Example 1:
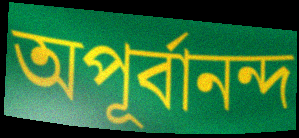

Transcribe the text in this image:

অপূর্বানন্দ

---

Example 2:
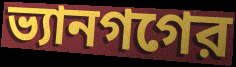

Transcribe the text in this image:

ভ্যানগগের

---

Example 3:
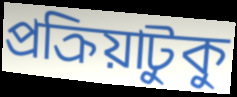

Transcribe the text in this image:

প্রক্রিয়াটুকু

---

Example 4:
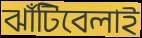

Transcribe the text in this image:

ঝাঁটিবেলাই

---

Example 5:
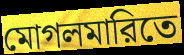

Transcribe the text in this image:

মোগলমারিতে